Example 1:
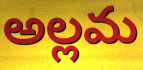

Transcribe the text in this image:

అల్లమ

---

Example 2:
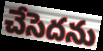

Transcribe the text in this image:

చేసెదను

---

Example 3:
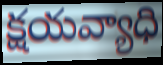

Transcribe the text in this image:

క్షయవ్యాధి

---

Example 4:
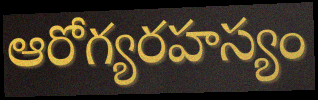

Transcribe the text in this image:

ఆరోగ్యరహస్యం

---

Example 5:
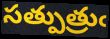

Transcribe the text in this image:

సత్పుత్రుఁ